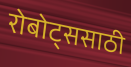
रोबोट्ससाठी